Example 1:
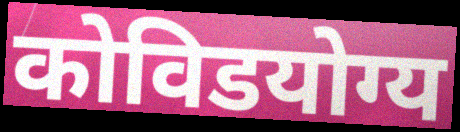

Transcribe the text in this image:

कोविडयोग्य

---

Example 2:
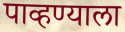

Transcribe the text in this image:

पाव्हण्याला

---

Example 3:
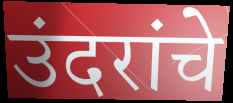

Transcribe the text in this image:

उंदरांचे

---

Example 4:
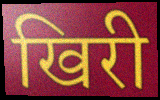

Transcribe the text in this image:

खिरी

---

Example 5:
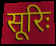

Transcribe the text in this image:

सूरिः